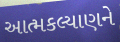
આત્મકલ્યાણને